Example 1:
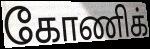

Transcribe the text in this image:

கோணிக்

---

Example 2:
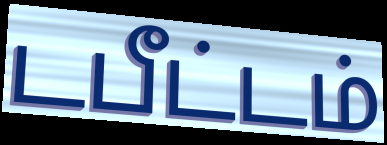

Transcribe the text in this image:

டபீட்டம்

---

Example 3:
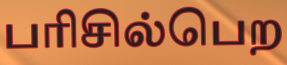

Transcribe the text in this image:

பரிசில்பெற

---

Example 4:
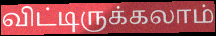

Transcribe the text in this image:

விட்டிருக்கலாம்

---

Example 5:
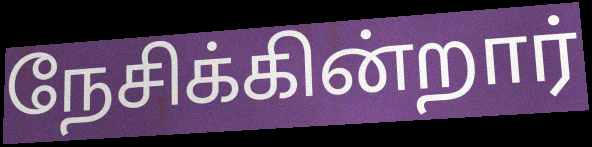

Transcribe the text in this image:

நேசிக்கின்றார்